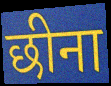
छीना